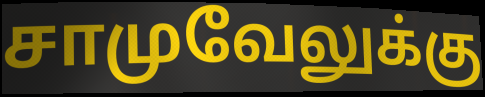
சாமுவேலுக்கு